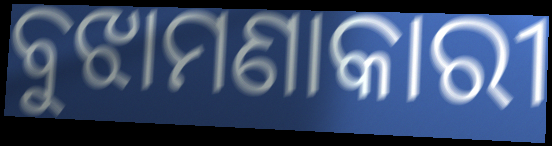
ବୁଝାମଣାକାରୀ